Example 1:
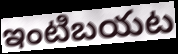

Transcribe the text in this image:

ఇంటిబయట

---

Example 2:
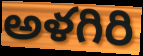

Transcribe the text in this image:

అళగిరి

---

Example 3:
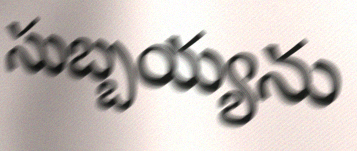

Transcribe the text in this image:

సుబ్బయ్యను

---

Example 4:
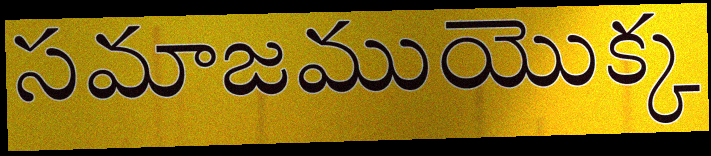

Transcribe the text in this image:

సమాజముయొక్క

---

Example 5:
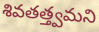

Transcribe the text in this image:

శివతత్త్వమని